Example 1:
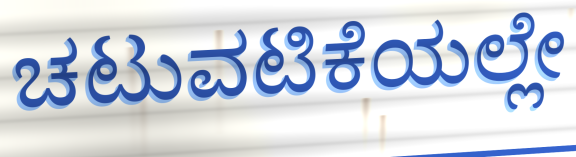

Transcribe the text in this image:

ಚಟುವಟಿಕೆಯಲ್ಲೇ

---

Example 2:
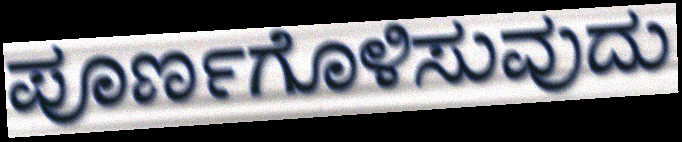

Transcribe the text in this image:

ಪೂರ್ಣಗೊಳಿಸುವುದು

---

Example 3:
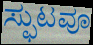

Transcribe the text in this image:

ಸ್ಫುಟವೂ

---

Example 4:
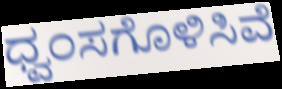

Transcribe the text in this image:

ಧ್ವಂಸಗೊಳಿಸಿವೆ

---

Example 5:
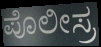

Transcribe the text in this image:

ಪೊಲೀಸ್ರ